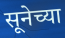
सूनेच्या